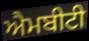
ਐਮਬੀਟੀ